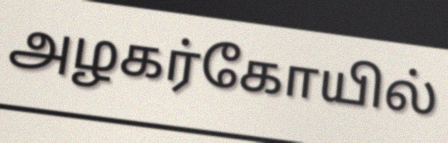
அழகர்கோயில்